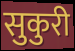
सुकुरी